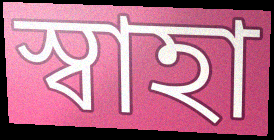
স্বাহা